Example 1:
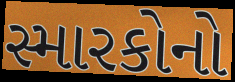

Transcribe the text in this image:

સ્મારકોનો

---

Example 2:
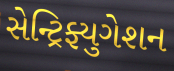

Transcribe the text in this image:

સેન્ટ્રિફ્યુગેશન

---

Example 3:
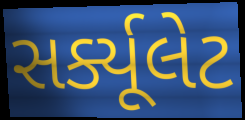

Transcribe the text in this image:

સર્ક્યૂલેટ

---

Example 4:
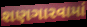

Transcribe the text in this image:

શણગારવામાં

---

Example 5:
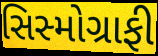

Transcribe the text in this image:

સિસ્મોગ્રાફી